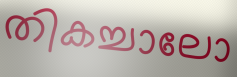
തികച്ചാലോ